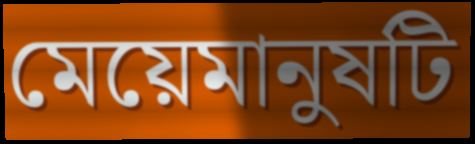
মেয়েমানুষটি